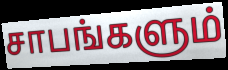
சாபங்களும்